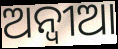
ଅନ୍ବୀଆ